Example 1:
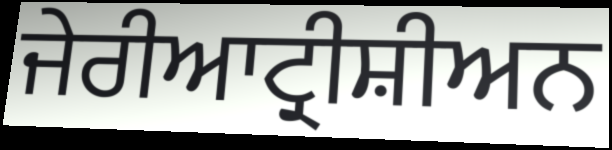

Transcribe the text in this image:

ਜੇਰੀਆਟ੍ਰੀਸ਼ੀਅਨ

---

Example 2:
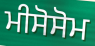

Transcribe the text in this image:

ਮੀਸੋਸੋਮ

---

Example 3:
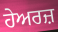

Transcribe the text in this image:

ਹੇਅਰਜ਼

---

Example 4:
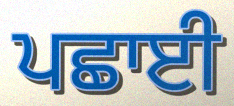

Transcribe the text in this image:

ਪਛਾਈ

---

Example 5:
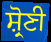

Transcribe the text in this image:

ਸ਼੍ਰੋਣੀ